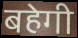
बहेगी